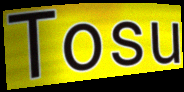
Tosu